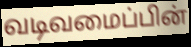
வடிவமைப்பின்